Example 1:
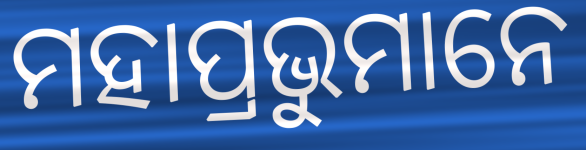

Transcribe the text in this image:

ମହାପ୍ରଭୁମାନେ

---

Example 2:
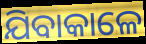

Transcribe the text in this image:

ଯିବାକାଳେ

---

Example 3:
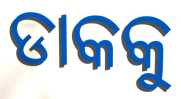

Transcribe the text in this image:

ଡାକକୁ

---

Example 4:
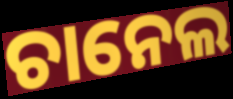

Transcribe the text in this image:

ଚାନେଲ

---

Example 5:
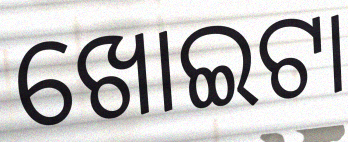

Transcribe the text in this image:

ଖୋଇଟା